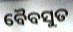
ବୈବସୁତ